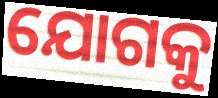
ଯୋଗକୁ